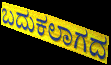
ಬದುಕಲಾಗದ